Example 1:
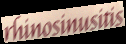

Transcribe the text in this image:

rhinosinusitis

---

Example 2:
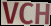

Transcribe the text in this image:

VCH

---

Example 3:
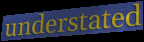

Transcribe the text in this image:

understated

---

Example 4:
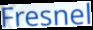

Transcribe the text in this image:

Fresnel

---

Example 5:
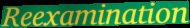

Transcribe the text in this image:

Reexamination